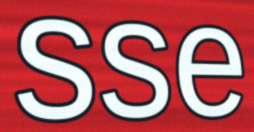
sse